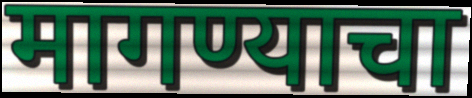
मागण्याचा